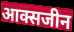
आक्सजीन